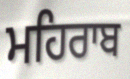
ਮਹਿਰਾਬ